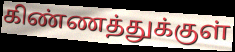
கிண்ணத்துக்குள்